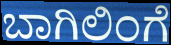
ಬಾಗಿಲಿಂಗೆ